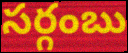
సర్గంబు